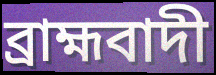
ব্রাহ্মবাদী